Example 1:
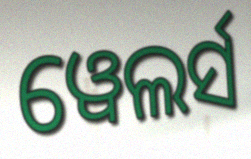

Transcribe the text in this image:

ୱେଲର୍ସ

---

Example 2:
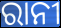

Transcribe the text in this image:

ରାନୀ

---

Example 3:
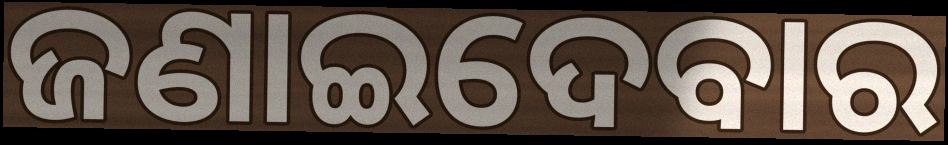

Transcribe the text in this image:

ଜଣାଇଦେବାର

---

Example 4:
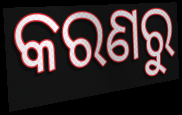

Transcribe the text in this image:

କରଣରୁ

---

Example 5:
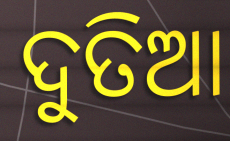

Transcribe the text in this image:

ଦୁତିଆ